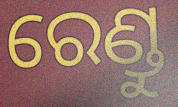
ରେଣ୍ଡୁ